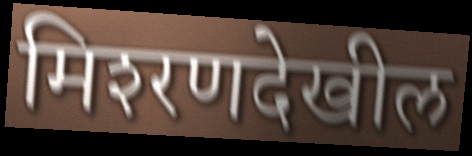
मिश्रणदेखील